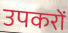
उपकरों